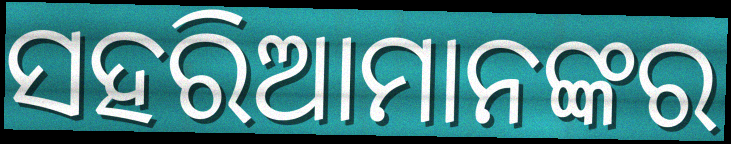
ସହରିଆମାନଙ୍କର